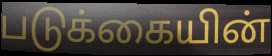
படுக்கையின்